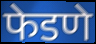
फेडणे